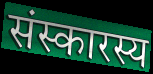
संस्कारस्य